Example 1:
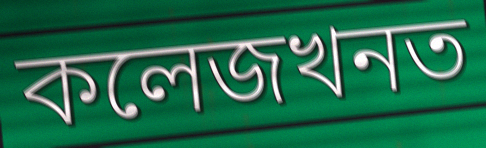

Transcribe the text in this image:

কলেজখনত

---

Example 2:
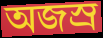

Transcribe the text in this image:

অজস্ৰ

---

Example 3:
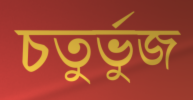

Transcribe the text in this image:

চতুৰ্ভুজ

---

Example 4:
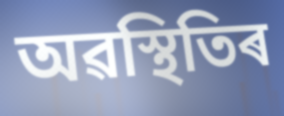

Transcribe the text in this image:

অৱস্থিতিৰ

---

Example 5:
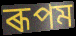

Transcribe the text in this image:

ৰূপম